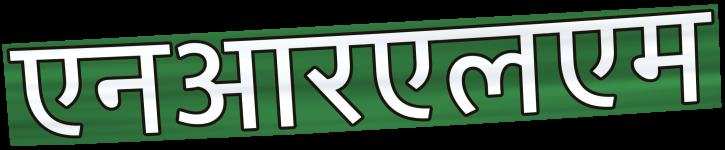
एनआरएलएम